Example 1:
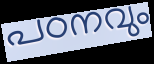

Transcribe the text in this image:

പഠനവും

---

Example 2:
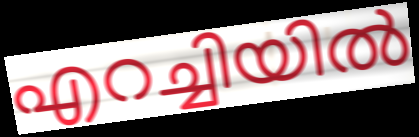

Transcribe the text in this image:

എറച്ചിയിൽ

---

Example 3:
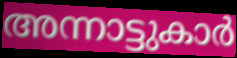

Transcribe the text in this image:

അന്നാട്ടുകാർ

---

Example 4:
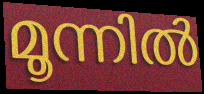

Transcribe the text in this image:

മൂന്നിൽ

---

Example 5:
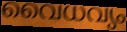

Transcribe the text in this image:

വൈധവ്യം